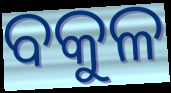
ବକୁଳ